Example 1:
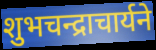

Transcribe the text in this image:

शुभचन्द्राचार्यने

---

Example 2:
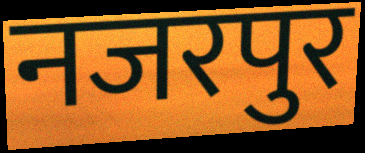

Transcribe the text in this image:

नजरपुर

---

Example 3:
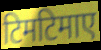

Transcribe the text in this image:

टिमटिमाए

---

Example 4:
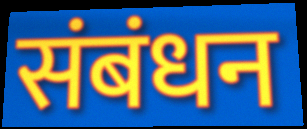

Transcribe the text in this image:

संबंधन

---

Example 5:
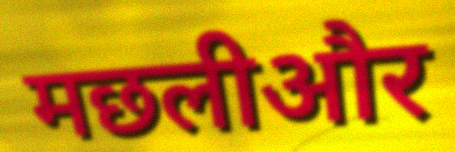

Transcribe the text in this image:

मछलीऔर